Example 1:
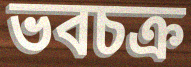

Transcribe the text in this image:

ভবচক্র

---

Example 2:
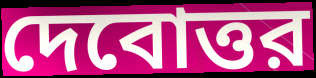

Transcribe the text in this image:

দেবোত্তর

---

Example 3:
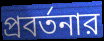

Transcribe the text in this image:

প্রবর্তনার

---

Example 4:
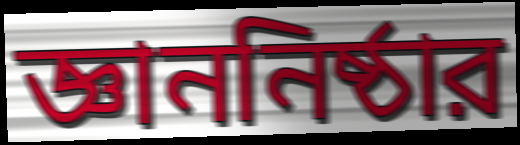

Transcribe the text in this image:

জ্ঞাননিষ্ঠার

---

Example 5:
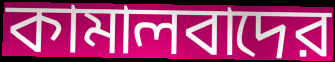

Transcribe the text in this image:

কামালবাদের